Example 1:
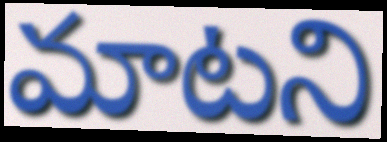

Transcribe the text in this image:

మాటని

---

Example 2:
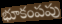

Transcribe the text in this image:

భూకంపపు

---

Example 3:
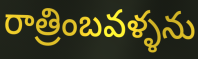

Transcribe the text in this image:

రాత్రింబవళ్ళను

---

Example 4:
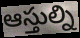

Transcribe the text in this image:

ఆస్తుల్ని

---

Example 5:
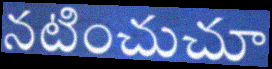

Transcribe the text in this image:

నటించుచూ